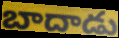
బాదాడు